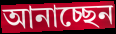
আনাচ্ছেন